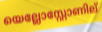
യെല്ലോസ്റ്റോണില്